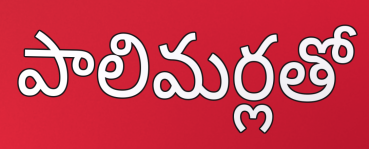
పాలిమర్లతో